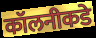
कॉलनीकडे